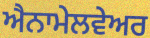
ਐਨਾਮੇਲਵੇਅਰ